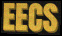
EECS